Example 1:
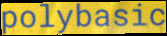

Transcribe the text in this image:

polybasic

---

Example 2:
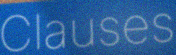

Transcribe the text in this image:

Clauses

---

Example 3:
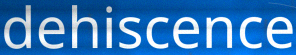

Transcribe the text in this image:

dehiscence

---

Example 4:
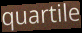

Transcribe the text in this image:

quartile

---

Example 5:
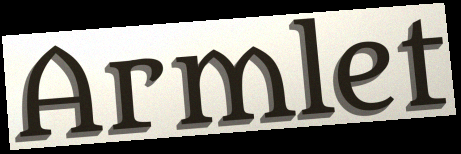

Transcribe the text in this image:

Armlet